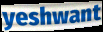
yeshwant